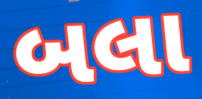
બલા